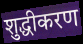
शुद्धीकरण